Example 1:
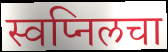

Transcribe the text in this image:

स्वप्निलचा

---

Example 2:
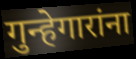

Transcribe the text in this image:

गुन्हेगारांना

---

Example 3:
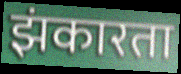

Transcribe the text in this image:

झंकारता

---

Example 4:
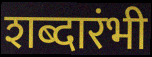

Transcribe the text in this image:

शब्दारंभी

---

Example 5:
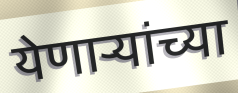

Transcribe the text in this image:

येणाऱ्यांच्या